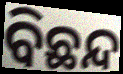
ବିଛନ୍ଦ